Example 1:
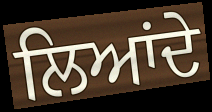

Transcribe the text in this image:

ਲਿਆਂਦੇ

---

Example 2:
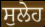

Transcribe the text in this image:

ਸੁਲੇਹ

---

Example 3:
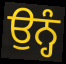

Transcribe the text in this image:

ਉਨ੍ਹੰ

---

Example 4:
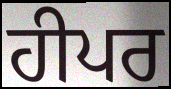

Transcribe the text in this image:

ਹੀਪਰ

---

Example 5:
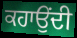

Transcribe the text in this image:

ਕਹਾਉਂਦੀ